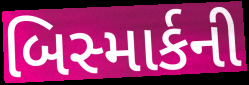
બિસ્માર્કની